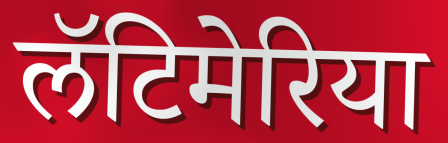
लॅटिमेरिया